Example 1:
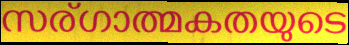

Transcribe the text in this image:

സര്ഗാത്മകതയുടെ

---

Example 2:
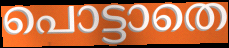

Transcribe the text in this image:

പൊട്ടാതെ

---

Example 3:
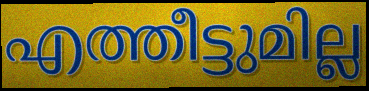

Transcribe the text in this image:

എത്തീട്ടുമില്ല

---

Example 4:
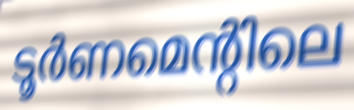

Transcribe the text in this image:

ടൂർണമെന്റിലെ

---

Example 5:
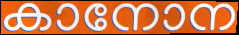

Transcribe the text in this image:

കാനോന